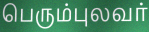
பெரும்புலவர்